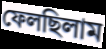
ফেলছিলাম